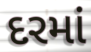
દરમાં